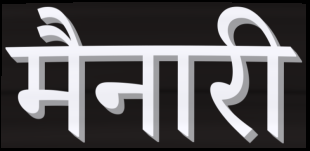
मैनारी